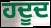
ਹਦੂਦ